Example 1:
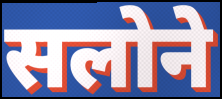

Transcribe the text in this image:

सलोने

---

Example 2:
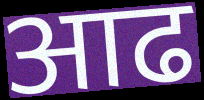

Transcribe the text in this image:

आढ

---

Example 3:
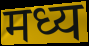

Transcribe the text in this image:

मध्‍य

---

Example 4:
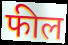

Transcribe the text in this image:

फील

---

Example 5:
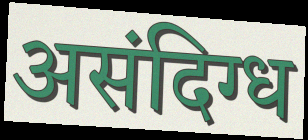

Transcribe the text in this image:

असंदिग्ध